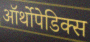
ऑर्थोपेडिक्स